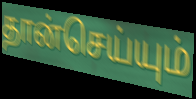
தான்செய்யும்